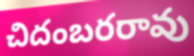
చిదంబరరావు